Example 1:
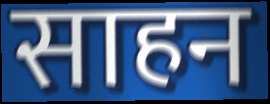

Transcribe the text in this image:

साहन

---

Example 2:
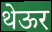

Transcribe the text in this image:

थेऊर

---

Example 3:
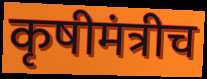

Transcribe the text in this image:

कृषीमंत्रीच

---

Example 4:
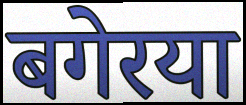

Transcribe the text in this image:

बगेरया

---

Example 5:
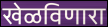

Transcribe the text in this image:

खेळविणारा